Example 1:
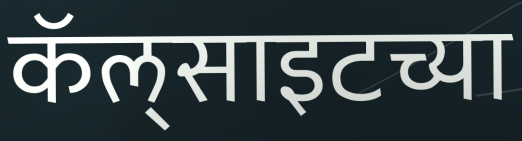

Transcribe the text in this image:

कॅल्साइटच्या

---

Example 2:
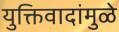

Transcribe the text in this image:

युक्तिवादांमुळे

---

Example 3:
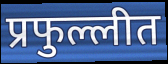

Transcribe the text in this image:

प्रफुल्लीत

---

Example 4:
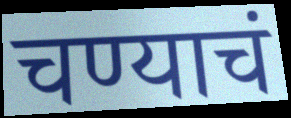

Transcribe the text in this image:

चण्याचं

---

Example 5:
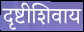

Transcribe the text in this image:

दृष्टीशिवाय